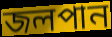
জলপান